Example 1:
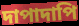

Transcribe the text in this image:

দাপাদাপি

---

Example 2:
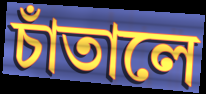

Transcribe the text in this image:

চাঁতালে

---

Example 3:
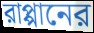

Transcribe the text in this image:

রাপ্পানের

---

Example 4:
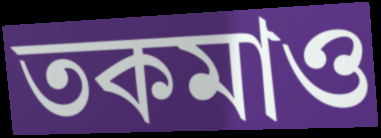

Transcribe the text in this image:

তকমাও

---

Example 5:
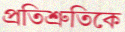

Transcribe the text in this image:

প্রতিশ্রুতিকে